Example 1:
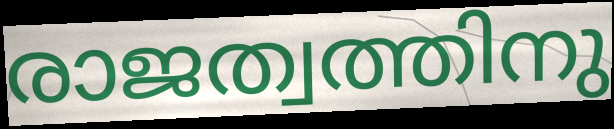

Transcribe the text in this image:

രാജത്വത്തിനു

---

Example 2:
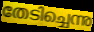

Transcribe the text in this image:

തേടിച്ചെന്നു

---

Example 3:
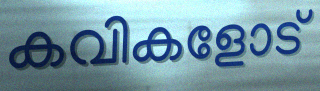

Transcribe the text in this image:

കവികളോട്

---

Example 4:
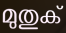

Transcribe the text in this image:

മുതുക്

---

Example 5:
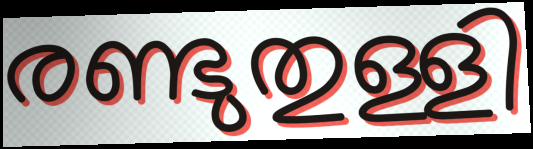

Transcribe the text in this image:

രണ്ടുതുള്ളി